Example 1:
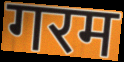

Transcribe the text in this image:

गरम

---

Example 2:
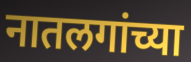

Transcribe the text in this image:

नातलगांच्या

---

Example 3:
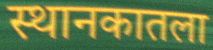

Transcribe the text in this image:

स्थानकातला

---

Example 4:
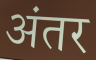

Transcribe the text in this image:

अंतर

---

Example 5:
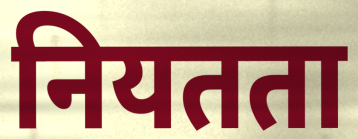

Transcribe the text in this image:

नियतता